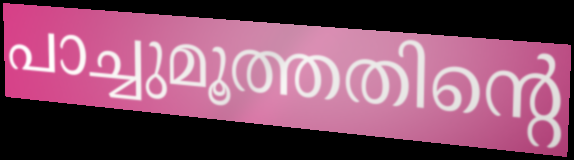
പാച്ചുമൂത്തതിന്റെ